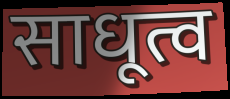
साधूत्व